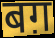
बग़